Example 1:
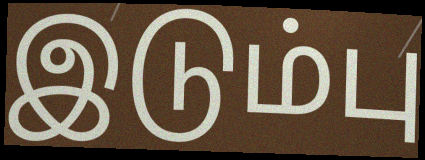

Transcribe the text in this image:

இடும்பு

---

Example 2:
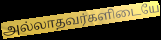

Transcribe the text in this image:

அல்லாதவர்களிடையே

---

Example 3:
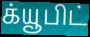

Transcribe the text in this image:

க்யூபிட்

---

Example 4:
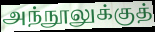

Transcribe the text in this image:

அந்நூலுக்குத்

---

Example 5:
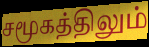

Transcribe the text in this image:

சமூகத்திலும்